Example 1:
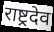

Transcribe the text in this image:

राष्ट्रदेव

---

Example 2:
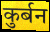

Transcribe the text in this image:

कुर्बन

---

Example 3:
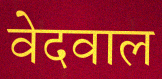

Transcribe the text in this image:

वेदवाल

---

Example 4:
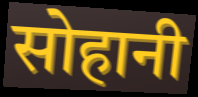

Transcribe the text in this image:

सोहानी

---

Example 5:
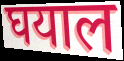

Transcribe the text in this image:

घयाल